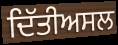
ਦਿੱਤੀਅਸਲ